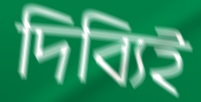
দিব্যিই